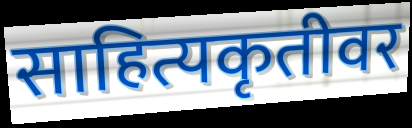
साहित्यकृतीवर